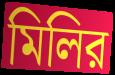
মিলির